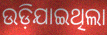
ଉଡ଼ିଯାଇଥିଲା